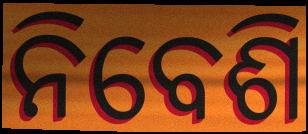
ନିବେଶି